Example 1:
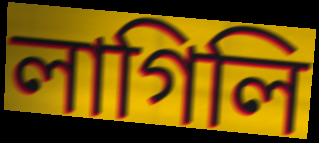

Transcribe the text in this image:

লাগিলি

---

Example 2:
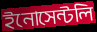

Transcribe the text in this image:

ইনোসেন্টলি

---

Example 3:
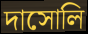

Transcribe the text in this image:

দাসোলি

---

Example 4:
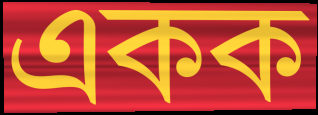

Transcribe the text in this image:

একক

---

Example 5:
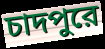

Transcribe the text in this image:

চাদপুরে